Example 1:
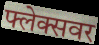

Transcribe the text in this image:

फ्लेक्सवर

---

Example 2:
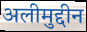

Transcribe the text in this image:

अलीमुद्दीन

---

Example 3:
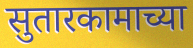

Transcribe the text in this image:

सुतारकामाच्या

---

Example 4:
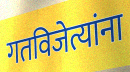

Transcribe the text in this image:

गतविजेत्यांना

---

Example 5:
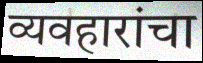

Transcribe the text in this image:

व्यवहारांचा